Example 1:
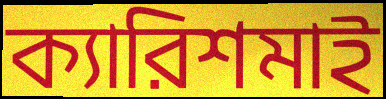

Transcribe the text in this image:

ক্যারিশমাই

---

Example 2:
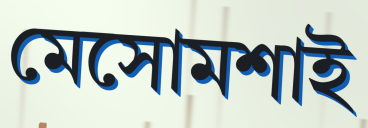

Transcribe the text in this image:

মেসোমশাই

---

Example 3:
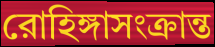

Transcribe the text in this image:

রোহিঙ্গাসংক্রান্ত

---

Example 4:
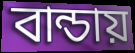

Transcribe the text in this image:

বান্ডায়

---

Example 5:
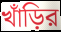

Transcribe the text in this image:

খাঁড়ির